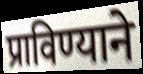
प्राविण्याने